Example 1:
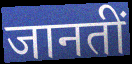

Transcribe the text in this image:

जानतीं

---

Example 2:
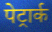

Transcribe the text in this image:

पेट्रार्क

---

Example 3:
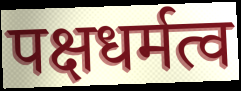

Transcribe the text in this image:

पक्षधर्मत्व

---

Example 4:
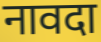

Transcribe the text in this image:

नावदा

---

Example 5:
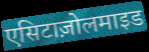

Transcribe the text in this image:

एसिटाज़ोलमाइड